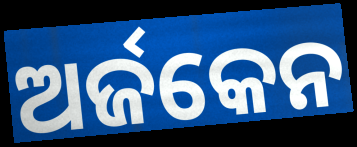
ଅର୍ଜକେନ